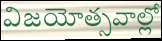
విజయోత్సవాల్లో